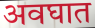
अवघात